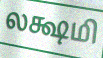
லக்ஷமி